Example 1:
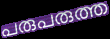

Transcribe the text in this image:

പരുപരുത്ത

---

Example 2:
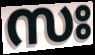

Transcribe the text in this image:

സഃ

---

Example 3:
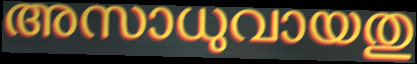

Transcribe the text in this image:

അസാധുവായതു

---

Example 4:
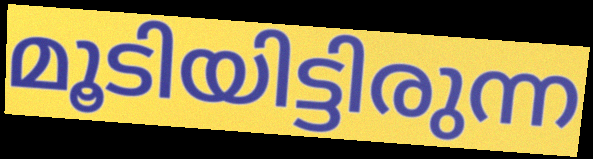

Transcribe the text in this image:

മൂടിയിട്ടിരുന്ന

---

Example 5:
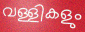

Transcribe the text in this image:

വള്ളികളും